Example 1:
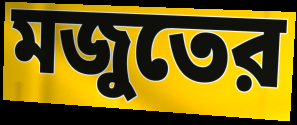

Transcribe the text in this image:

মজুতের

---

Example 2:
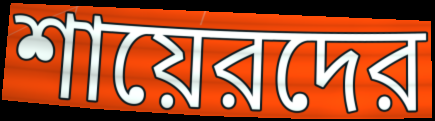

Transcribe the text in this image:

শায়েরদের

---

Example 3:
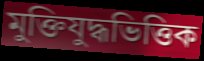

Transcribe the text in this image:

মুক্তিযুদ্ধভিত্তিক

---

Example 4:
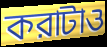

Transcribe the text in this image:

করাটাও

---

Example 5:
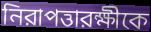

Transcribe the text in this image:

নিরাপত্তারক্ষীকে